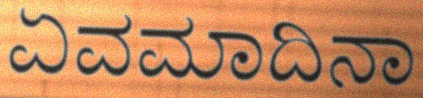
ಏವಮಾದಿನಾ